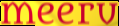
meeru